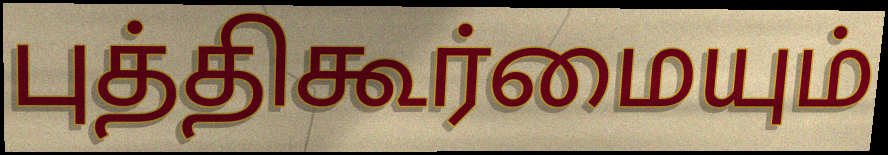
புத்திகூர்மையும்